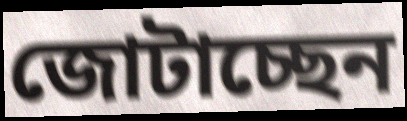
জোটাচ্ছেন